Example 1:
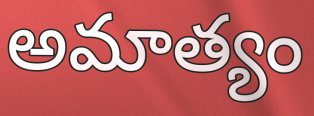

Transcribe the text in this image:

అమాత్యం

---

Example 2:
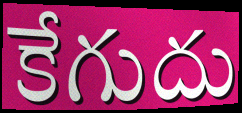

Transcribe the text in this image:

కేగుదు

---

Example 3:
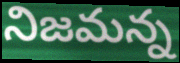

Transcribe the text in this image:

నిజమన్న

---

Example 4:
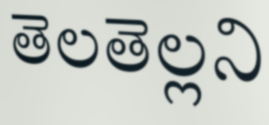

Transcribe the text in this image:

తెలతెల్లని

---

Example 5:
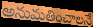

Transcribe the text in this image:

అనుమతించాలనే